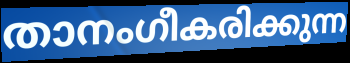
താനംഗീകരിക്കുന്ന